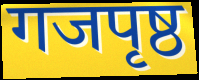
गजपृष्ठ